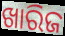
ଖାରିଜ